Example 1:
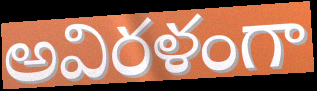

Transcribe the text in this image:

అవిరళంగా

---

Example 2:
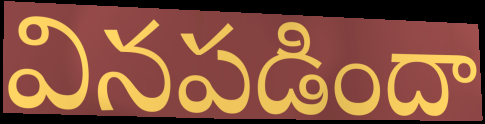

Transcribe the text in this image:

వినపడిందా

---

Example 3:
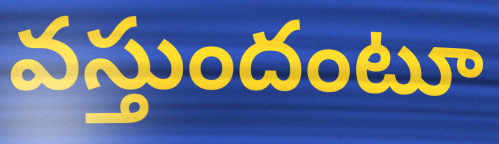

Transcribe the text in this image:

వస్తుందంటూ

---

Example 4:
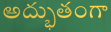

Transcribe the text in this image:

అద్భుతంగా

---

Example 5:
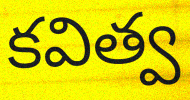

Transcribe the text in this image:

కవిత్వ